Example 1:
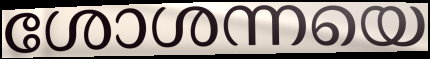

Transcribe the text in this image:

ശോശന്നയെ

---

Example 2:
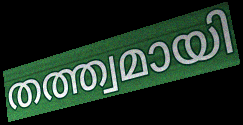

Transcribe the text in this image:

തത്ത്വമായി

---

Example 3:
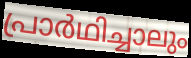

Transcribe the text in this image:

പ്രാർഥിച്ചാലും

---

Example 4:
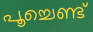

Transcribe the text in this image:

പൂച്ചെണ്ട്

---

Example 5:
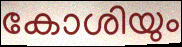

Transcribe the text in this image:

കോശിയും